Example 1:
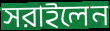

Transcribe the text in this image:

সরাইলেন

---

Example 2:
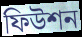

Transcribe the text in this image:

ফিউশন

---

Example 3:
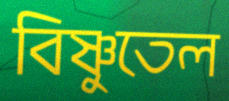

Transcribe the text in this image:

বিষ্ণুতেল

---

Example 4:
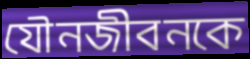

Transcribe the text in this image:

যৌনজীবনকে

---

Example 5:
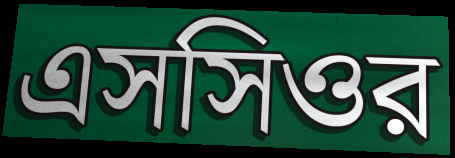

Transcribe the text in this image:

এসসিওর